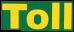
Toll